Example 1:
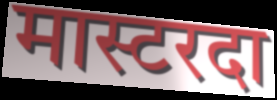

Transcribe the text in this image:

मास्टरदा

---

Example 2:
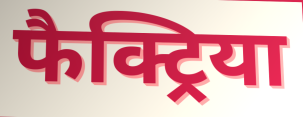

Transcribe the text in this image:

फैक्ट्रिया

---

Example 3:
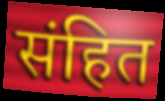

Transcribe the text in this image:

संहित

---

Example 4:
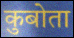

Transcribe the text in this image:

कुबोता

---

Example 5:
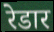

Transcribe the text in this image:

रेडार